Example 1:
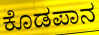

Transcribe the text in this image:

ಕೊಡಪಾನ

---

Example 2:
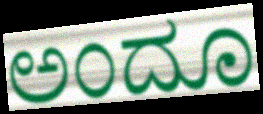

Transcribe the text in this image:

ಅಂದೂ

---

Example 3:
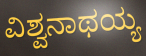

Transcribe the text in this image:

ವಿಶ್ವನಾಥಯ್ಯ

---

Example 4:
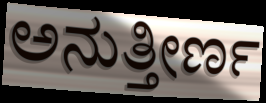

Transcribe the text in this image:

ಅನುತ್ತೀರ್ಣ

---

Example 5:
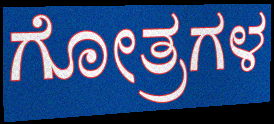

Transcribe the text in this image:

ಗೋತ್ರಗಳ